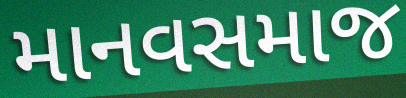
માનવસમાજ